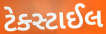
ટેક્સ્ટાઈલ